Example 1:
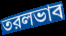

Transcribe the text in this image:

তরলভাব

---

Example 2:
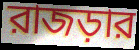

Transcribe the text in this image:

রাজড়ার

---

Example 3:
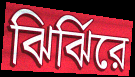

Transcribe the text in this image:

ঝির্ঝিরে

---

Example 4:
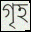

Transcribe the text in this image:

গৃহ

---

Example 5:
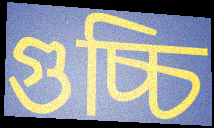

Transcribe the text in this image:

গুচ্চি